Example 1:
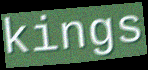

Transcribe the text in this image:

kings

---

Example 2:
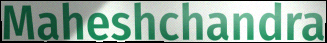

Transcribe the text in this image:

Maheshchandra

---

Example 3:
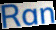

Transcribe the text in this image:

Ran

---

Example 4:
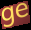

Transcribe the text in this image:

ge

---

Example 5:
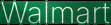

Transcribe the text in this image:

Walmart